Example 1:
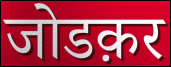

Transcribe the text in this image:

जोडक़र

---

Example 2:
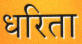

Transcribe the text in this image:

धरिता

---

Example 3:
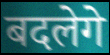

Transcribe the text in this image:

बदलेगे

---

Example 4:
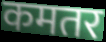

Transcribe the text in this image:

कमतर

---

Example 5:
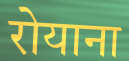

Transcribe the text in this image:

रोयाना